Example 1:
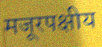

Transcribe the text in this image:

मजूरपक्षीय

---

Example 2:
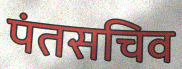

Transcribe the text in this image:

पंतसचिव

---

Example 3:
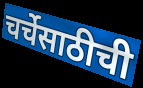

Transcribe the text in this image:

चर्चेसाठीची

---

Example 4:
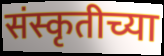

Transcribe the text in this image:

संस्कृतीच्या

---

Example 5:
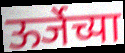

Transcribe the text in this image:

ऊर्जेच्या